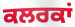
ਕਲਰਕਾਂ